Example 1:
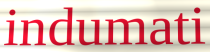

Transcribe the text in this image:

indumati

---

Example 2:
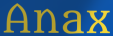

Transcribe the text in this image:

Anax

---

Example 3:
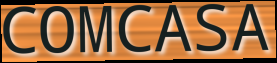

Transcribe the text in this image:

COMCASA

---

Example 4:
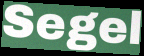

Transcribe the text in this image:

Segel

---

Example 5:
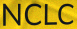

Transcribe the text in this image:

NCLC